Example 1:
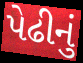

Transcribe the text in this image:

પેઢીનું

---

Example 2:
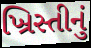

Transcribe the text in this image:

ખ્રિસ્તીનું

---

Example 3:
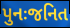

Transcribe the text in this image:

પુનઃજનિત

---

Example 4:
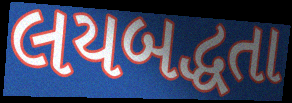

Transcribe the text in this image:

લયબદ્ધતા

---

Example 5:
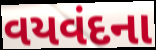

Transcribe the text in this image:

વયવંદના